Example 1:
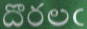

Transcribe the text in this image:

దొరలఁ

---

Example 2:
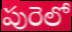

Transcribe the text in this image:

పురెలో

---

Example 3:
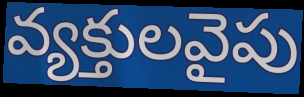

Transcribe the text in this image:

వ్యక్తులవైపు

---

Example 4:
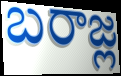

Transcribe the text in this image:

బరాజ్ల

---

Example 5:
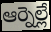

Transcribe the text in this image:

ఆర్నెల్లే